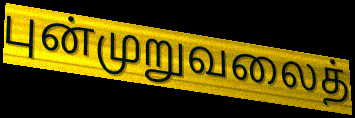
புன்முறுவலைத்